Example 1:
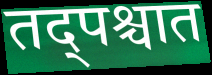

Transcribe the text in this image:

तद्पश्चात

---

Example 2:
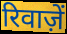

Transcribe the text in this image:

रिवाज़ें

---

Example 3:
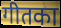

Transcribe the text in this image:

गीतका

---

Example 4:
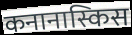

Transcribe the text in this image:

कनानास्किस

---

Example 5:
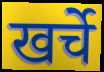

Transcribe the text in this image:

खर्चे